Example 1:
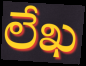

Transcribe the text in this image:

లేఖ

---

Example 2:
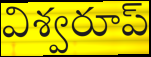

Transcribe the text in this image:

విశ్వరూప్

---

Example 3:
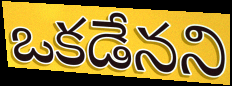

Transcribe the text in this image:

ఒకడేనని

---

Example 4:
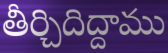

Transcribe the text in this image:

తీర్చిదిద్దాము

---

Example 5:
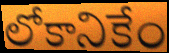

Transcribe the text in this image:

లోకానికేం